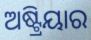
ଅଷ୍ଟ୍ରିୟାର